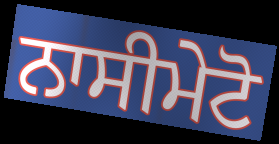
ਨਾਸੀਮੇਟੋ